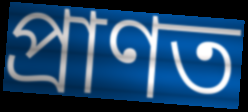
প্ৰাণত